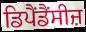
ਡਿਪੈਂਡੈਂਸੀਜ਼